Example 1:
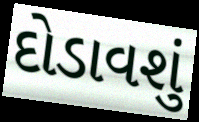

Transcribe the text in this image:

દોડાવશું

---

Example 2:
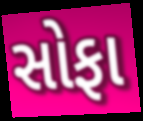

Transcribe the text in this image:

સોફા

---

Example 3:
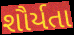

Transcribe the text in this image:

શૌર્યતા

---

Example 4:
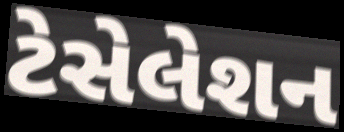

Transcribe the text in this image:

ટેસેલેશન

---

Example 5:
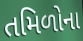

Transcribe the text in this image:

તમિળોના